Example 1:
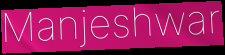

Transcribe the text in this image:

Manjeshwar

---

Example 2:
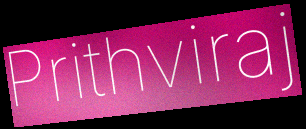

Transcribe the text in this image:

Prithviraj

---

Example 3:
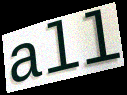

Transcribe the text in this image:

all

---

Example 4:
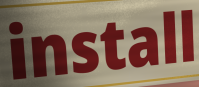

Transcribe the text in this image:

install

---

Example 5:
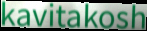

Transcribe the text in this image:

kavitakosh